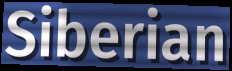
Siberian